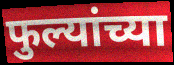
फुल्यांच्या